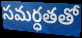
సమర్ధతతో